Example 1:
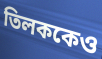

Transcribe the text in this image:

তিলককেও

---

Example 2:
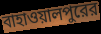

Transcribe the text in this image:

বাহাওয়ালপুরের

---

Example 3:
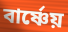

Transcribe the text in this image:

বার্ষ্ণেয়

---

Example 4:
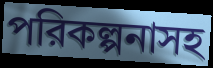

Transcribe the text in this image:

পরিকল্পনাসহ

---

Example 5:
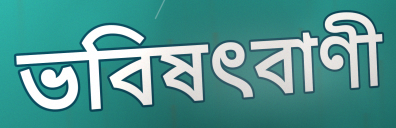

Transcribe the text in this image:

ভবিষৎবাণী